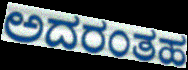
ಅದರಂತಹ